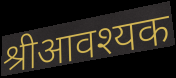
श्रीआवश्यक